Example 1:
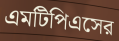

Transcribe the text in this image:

এমটিপিএসের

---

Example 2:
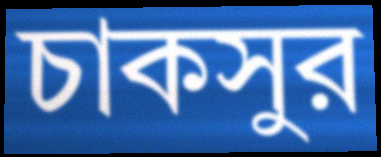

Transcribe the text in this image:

চাকসুর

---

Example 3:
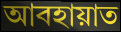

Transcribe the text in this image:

আবহায়াত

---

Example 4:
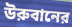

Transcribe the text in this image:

উরুবানের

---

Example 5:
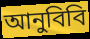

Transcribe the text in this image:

আনুবিবি